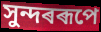
সুন্দৰৰূপে